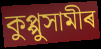
কুপ্পুসামীৰ